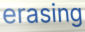
erasing